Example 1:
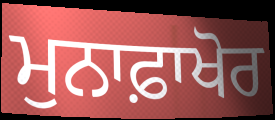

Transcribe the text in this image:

ਮੁਨਾਫ਼ਾਖੋਰ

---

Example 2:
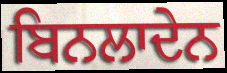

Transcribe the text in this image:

ਬਿਨਲਾਦੇਨ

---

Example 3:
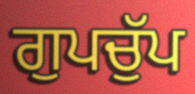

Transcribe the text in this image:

ਗੁਪਚੁੱਪ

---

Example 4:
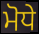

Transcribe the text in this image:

ਮੋਧੇ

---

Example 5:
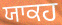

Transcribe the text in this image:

ਯਾਕਹ